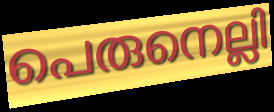
പെരുനെല്ലി